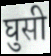
घुसी